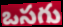
ఒసగు